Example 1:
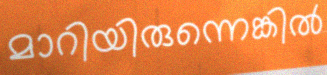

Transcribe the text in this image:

മാറിയിരുന്നെങ്കിൽ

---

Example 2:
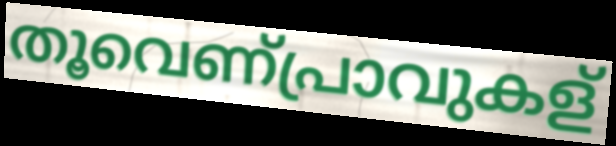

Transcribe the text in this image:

തൂവെണ്പ്രാവുകള്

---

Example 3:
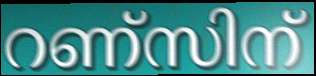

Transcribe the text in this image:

റണ്സിന്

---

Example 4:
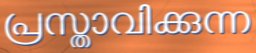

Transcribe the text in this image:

പ്രസ്താവിക്കുന്ന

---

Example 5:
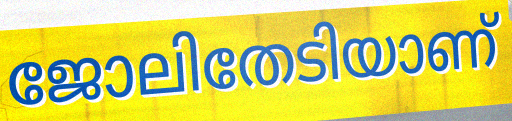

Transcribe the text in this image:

ജോലിതേടിയാണ്